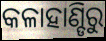
କଳାହାଣ୍ଡିରୁ